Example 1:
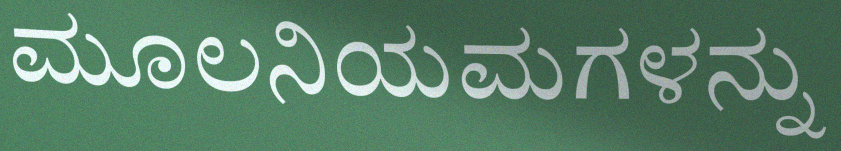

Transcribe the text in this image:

ಮೂಲನಿಯಮಗಳನ್ನು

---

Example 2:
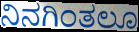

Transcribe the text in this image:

ನಿನಗಿಂತಲೂ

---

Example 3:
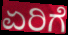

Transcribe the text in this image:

ಏರಿಗೆ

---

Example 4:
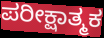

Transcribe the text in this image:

ಪರೀಕ್ಷಾತ್ಮಕ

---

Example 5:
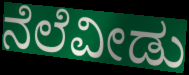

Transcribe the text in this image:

ನೆಲೆವೀಡು